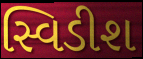
સ્વિડીશ